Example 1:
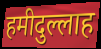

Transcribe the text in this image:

हमीदुल्लाह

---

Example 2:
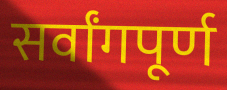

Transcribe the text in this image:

सर्वांगपूर्ण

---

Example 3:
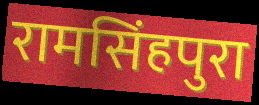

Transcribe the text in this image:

रामसिंहपुरा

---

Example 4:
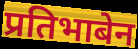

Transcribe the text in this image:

प्रतिभाबेन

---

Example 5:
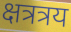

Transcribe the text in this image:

क्षत्रत्रय